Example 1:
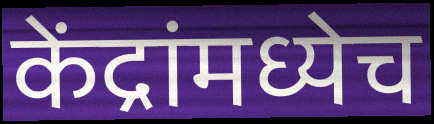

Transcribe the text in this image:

केंद्रांमध्येच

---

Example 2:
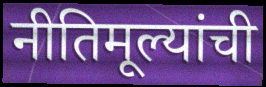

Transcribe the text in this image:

नीतिमूल्यांची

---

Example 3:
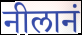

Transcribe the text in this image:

नीलानं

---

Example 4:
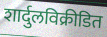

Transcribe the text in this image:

शार्दुलविक्रीडित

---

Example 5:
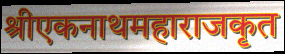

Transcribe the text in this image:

श्रीएकनाथमहाराजकृत